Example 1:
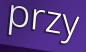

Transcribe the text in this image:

przy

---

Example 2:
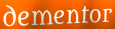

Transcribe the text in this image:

dementor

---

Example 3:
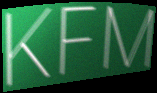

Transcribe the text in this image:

KFM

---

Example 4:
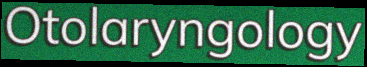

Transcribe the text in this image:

Otolaryngology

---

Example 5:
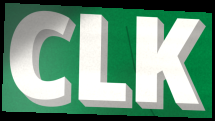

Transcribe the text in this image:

CLK